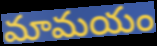
మామయం